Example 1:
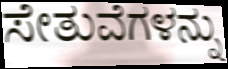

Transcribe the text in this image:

ಸೇತುವೆಗಳನ್ನು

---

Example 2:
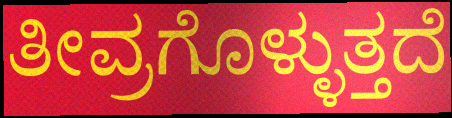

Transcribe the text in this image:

ತೀವ್ರಗೊಳ್ಳುತ್ತದೆ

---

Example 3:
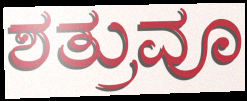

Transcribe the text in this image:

ಶತ್ರುವೂ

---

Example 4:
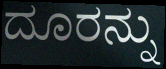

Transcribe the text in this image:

ದೂರನ್ನು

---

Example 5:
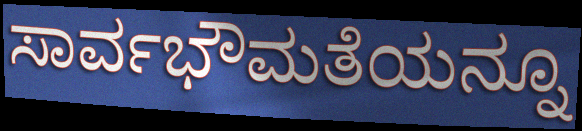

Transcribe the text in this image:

ಸಾರ್ವಭೌಮತೆಯನ್ನೂ